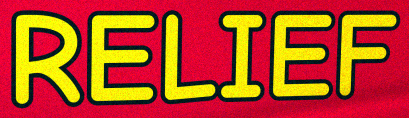
RELIEF